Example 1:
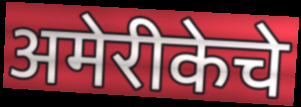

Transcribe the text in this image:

अमेरीकेचे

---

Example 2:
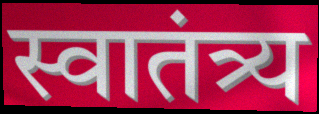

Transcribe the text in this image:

स्‍वातंत्र्य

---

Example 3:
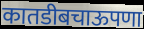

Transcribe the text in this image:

कातडीबचाऊपणा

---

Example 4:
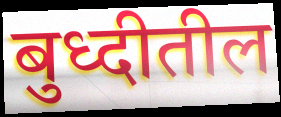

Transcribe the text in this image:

बुध्दीतील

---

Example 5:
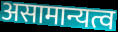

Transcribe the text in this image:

असामान्यत्व